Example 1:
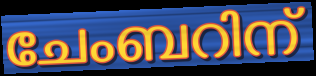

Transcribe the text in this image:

ചേംബറിന്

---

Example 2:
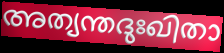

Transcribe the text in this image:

അത്യന്തദുഃഖിതാ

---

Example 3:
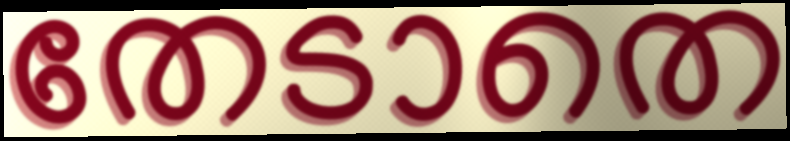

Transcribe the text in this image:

തേടാതെ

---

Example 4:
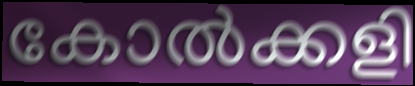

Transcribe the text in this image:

കോൽക്കളി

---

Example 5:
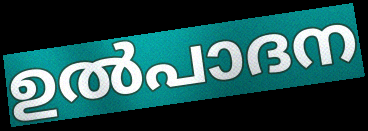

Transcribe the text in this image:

ഉൽപാദന